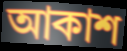
আকাশ